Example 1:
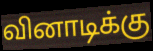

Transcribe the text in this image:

வினாடிக்கு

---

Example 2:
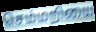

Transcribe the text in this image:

செம்மறியை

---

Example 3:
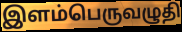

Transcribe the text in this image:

இளம்பெருவழுதி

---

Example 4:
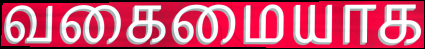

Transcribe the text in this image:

வகைமையாக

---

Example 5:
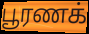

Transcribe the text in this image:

பூரணக்